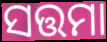
ସତ୍ତମା